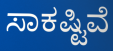
ಸಾಕಷ್ಟಿವೆ